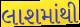
લાશમાંથી